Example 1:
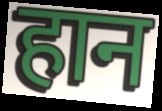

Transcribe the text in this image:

हान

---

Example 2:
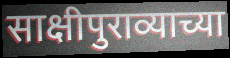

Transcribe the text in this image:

साक्षीपुराव्याच्या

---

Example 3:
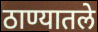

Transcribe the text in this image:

ठाण्यातले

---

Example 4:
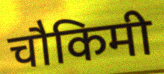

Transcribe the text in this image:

चौकिमी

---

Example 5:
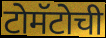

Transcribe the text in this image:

टोमॅटोची